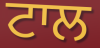
ਟਾਲ